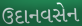
ઉદાનવસેન